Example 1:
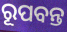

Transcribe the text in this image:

ରୂପବନ୍ତ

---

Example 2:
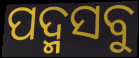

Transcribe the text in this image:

ପଦ୍ମସବୁ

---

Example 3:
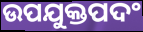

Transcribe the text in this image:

ଉପଯୁକ୍ତପଦଂ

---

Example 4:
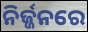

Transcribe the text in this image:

ନିର୍ଜ୍ଜନରେ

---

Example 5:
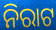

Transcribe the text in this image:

ନିରାଟ